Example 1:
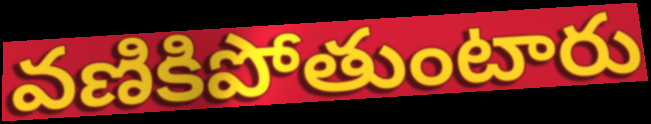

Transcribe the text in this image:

వణికిపోతుంటారు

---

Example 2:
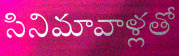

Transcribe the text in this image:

సినిమావాళ్లతో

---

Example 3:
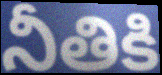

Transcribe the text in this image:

నీతికి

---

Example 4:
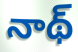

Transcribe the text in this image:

నాథ్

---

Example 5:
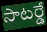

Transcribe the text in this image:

సాటర్డే